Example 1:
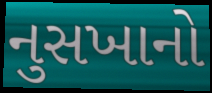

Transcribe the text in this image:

નુસખાનો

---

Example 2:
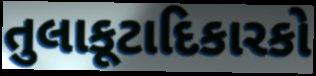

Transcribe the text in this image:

તુલાકૂટાદિકારકો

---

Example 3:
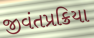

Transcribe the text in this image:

જીવંતપ્રક્રિયા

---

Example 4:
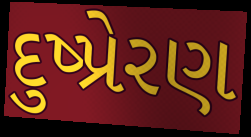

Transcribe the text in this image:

દુષ્પ્રેરણ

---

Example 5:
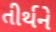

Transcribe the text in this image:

તીર્થને